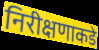
निरीक्षणाकडे